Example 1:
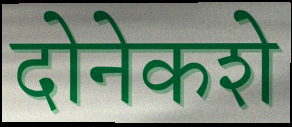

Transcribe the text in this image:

दोनेकशे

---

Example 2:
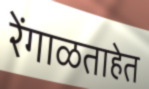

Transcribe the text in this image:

रेंगाळताहेत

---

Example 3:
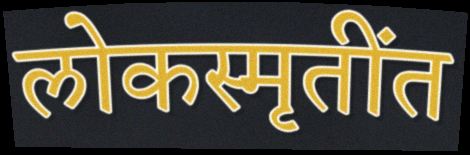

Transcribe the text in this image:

लोकस्मृतींत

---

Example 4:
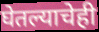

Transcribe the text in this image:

घेतल्याचेही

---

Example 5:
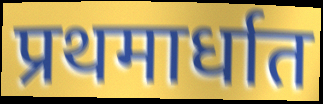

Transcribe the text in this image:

प्रथमार्धात